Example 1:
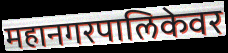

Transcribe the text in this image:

महानगरपालिकेवर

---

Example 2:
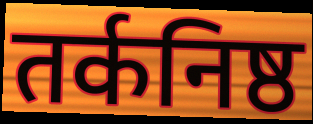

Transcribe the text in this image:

तर्कनिष्ठ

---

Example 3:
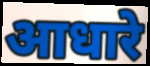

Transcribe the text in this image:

आधारे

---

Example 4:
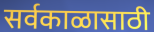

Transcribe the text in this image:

सर्वकाळासाठी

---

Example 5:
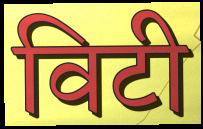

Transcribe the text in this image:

विटी